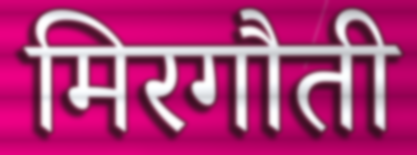
मिरगौती